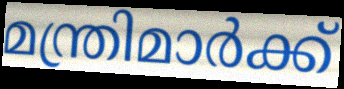
മന്ത്രിമാർക്ക്